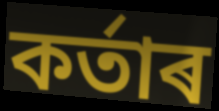
কৰ্তাৰ